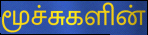
மூச்சுகளின்